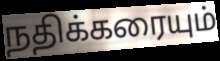
நதிக்கரையும்